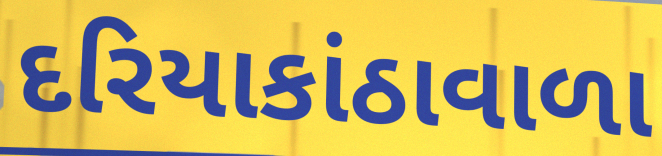
દરિયાકાંઠાવાળા